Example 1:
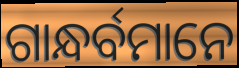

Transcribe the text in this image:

ଗାନ୍ଧର୍ବମାନେ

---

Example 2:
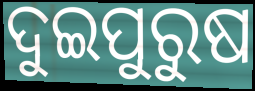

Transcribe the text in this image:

ଦୁଇପୁରୁଷ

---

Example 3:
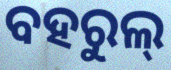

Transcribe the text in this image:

ବହରୁଲ୍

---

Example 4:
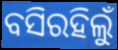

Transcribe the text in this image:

ବସିରହିଲୁଁ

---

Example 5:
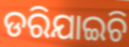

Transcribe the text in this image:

ଡରିଯାଇଚି